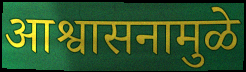
आश्वासनामुळे